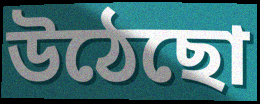
উঠেছো